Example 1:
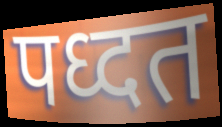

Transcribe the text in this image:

पध्दत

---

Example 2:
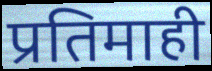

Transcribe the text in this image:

प्रतिमाही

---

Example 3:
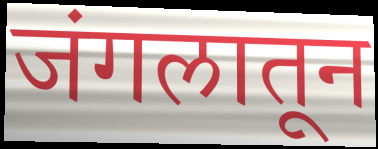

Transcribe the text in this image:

जंगलातून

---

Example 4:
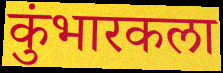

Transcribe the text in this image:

कुंभारकला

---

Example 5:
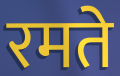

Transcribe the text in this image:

रमते